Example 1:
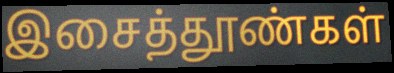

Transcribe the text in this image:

இசைத்தூண்கள்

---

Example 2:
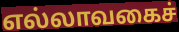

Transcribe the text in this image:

எல்லாவகைச்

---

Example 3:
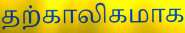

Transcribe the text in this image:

தற்காலிகமாக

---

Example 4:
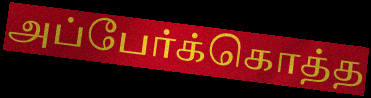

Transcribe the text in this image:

அப்பேர்க்கொத்த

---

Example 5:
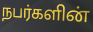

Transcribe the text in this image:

நபர்களின்